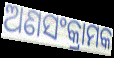
ଅଣସଂକ୍ରାମକ